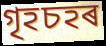
গৃহচহৰ